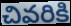
చివరికి